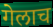
गेलाच